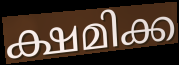
ക്ഷമിക്ക